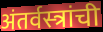
अंतर्वस्त्रांची